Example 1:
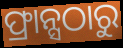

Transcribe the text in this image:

ଫ୍ରାନ୍ସଠାରୁ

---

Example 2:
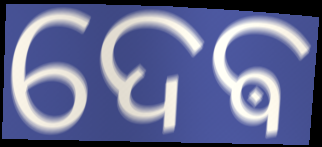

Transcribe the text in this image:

ଦେଵ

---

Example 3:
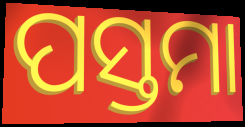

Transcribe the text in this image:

ପସ୍ତମା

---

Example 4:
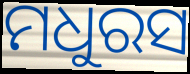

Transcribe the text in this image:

ମଧୁରସ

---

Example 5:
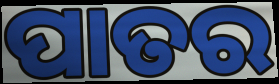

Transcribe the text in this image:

ପାତର